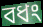
বধং